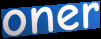
oner